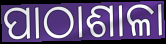
ପାଠାଶାଳା